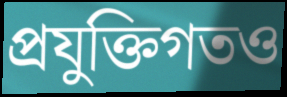
প্রযুক্তিগতও